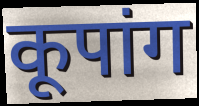
कूपांग